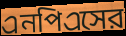
এনপিএসের